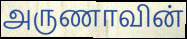
அருணாவின்